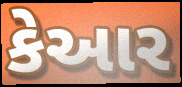
કેઆર